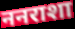
ननराशा